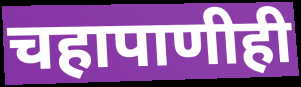
चहापाणीही